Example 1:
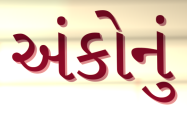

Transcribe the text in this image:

અંકોનું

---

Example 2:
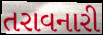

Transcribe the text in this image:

તરાવનારી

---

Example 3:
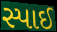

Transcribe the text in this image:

સ્પાઈ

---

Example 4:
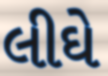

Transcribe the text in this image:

લીઘે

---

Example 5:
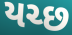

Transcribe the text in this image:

યચ્છ